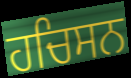
ਹਚਿਸਨ